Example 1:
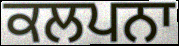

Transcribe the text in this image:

ਕਲਪਨਾ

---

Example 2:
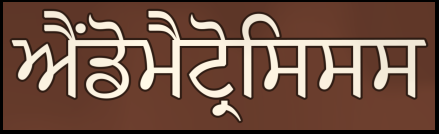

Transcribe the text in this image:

ਐਂਡੋਮੈਟ੍ਰੋਸਿਸਸ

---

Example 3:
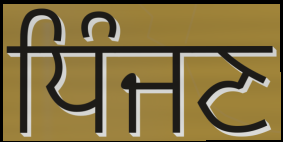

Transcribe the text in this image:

ਧਿੰਜਣ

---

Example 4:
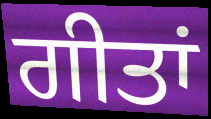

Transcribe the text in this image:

ਗੀਤਾਂ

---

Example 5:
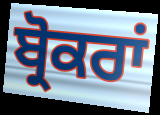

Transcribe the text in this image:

ਬ੍ਰੋਕਰਾਂ